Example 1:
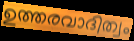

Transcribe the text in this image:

ഉത്തരവാദിത്വം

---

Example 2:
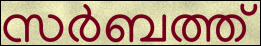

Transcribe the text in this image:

സർബത്ത്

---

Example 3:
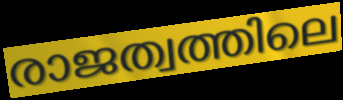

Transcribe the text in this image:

രാജത്വത്തിലെ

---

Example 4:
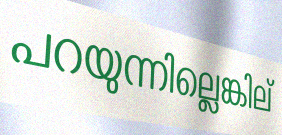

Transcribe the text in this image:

പറയുന്നില്ലെങ്കില്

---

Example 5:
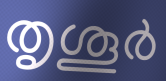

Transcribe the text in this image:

തൃശൂർ